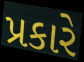
પ્રકારે